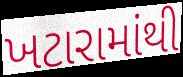
ખટારામાંથી